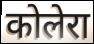
कोलेरा